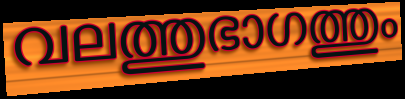
വലത്തുഭാഗത്തും